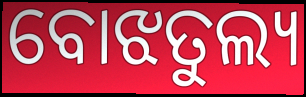
ବୋଝତୁଲ୍ୟ